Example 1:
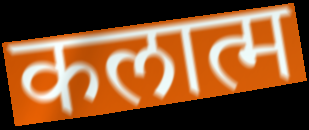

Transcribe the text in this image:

कलात्म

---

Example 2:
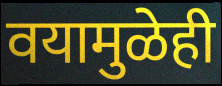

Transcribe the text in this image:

वयामुळेही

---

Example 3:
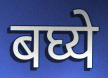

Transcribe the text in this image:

बघ्ये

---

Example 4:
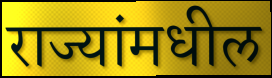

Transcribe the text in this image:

राज्यांमधील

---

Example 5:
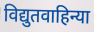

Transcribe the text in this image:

विद्युतवाहिन्या